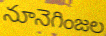
నూనెగింజల